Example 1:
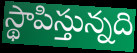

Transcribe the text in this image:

స్థాపిస్తున్నది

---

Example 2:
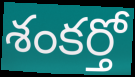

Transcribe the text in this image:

శంకర్తో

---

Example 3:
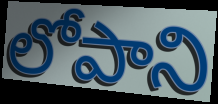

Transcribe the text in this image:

లోపాని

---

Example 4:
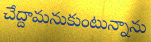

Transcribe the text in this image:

చేద్దామనుకుంటున్నాను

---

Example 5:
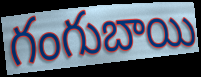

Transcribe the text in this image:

గంగుబాయి